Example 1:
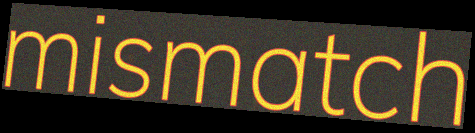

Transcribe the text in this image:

mismatch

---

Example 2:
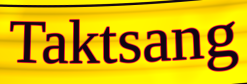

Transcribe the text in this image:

Taktsang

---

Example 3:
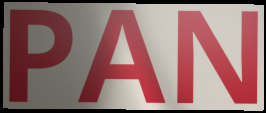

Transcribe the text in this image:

PAN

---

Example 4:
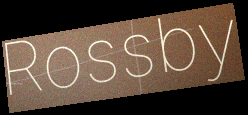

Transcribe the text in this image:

Rossby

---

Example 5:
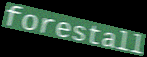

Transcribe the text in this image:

forestall